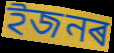
ইজনৰ